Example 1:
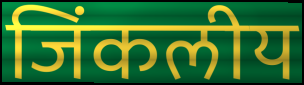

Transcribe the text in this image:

जिंकलीय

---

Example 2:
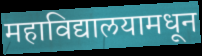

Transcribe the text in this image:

महाविद्यालयामधून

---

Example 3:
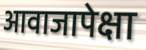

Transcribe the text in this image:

आवाजापेक्षा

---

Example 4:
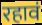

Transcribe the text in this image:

रहावं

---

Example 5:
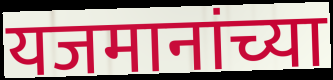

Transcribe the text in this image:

यजमानांच्या